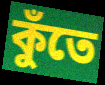
কুঁতে